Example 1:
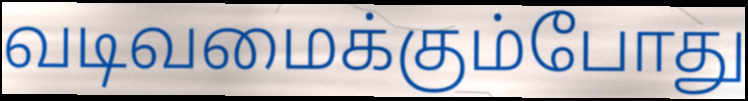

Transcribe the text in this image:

வடிவமைக்கும்போது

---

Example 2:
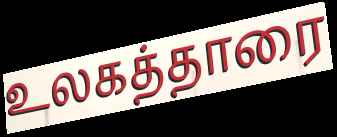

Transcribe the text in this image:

உலகத்தாரை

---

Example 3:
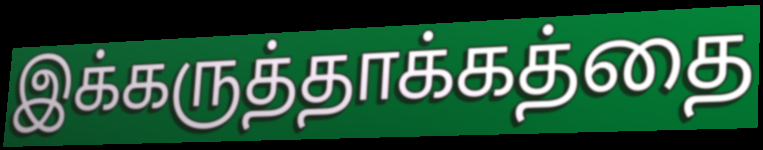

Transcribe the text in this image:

இக்கருத்தாக்கத்தை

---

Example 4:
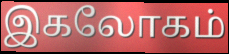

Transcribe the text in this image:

இகலோகம்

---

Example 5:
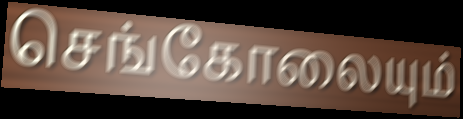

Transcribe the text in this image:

செங்கோலையும்